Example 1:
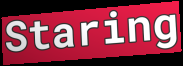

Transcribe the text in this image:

Staring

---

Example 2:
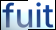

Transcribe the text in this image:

fuit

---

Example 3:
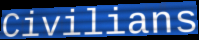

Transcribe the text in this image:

Civilians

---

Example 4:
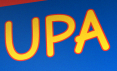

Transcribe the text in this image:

UPA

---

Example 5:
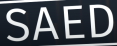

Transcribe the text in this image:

SAED